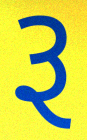
રૂ